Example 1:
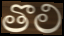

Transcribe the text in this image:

తొలి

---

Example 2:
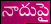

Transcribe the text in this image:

నాదుపై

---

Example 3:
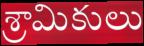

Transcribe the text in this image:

శ్రామికులు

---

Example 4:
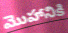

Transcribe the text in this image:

మొహానికి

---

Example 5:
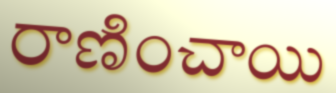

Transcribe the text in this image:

రాణించాయి